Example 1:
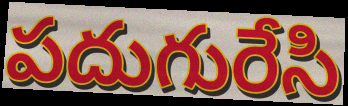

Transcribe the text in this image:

పదుగురేసి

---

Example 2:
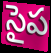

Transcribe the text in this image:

సైప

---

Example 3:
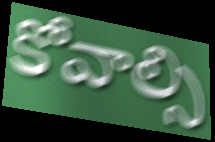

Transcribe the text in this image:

కోవాల్సి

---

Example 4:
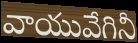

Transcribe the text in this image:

వాయువేగినీ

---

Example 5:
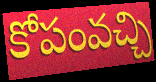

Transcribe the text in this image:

కోపంవచ్చి